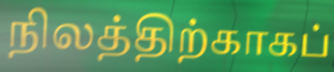
நிலத்திற்காகப்